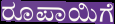
ರೂಪಾಯಿಗೆ